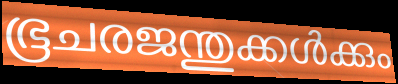
ഭൂചരജന്തുക്കൾക്കും